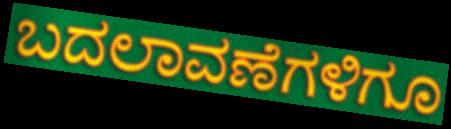
ಬದಲಾವಣೆಗಳಿಗೂ